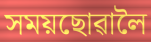
সময়ছোৱালৈ